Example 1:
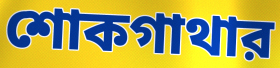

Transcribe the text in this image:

শোকগাথার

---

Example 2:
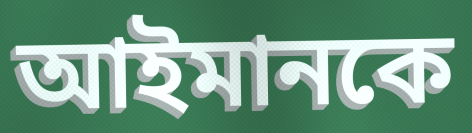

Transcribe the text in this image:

আইমানকে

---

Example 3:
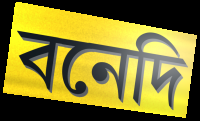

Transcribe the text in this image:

বনেদি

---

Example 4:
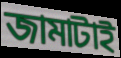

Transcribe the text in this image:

জামাটাই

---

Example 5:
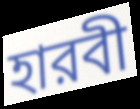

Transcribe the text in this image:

হারবী